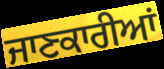
ਜਾਣਕਾਰੀਆਂ